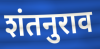
शंतनुराव